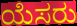
ಯೆಸರು